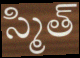
స్మిత్